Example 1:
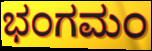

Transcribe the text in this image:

ಭಂಗಮಂ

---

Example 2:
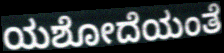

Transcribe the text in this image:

ಯಶೋದೆಯಂತೆ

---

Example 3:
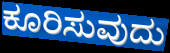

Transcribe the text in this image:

ಕೂರಿಸುವುದು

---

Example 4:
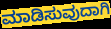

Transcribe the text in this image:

ಮಾಡಿಸುವುದಾಗಿ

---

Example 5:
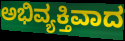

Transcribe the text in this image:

ಅಭಿವ್ಯಕ್ತಿವಾದ